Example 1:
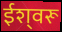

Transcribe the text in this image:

ईश्वरू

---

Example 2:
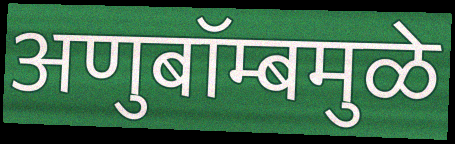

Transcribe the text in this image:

अणुबॉम्बमुळे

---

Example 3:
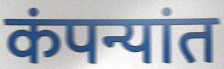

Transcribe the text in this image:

कंपन्यांत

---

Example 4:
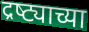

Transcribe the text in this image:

द्रष्ट्याच्या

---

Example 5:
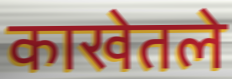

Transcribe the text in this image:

काखेतले